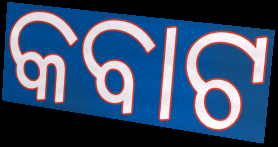
କବାଟ